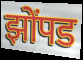
झोंपड